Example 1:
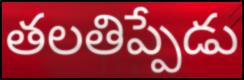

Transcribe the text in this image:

తలతిప్పేడు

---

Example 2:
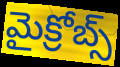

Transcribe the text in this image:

మైక్రోబ్స్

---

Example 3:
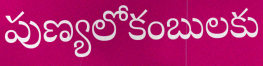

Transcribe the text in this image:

పుణ్యలోకంబులకు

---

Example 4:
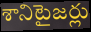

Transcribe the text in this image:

శానిటైజర్లు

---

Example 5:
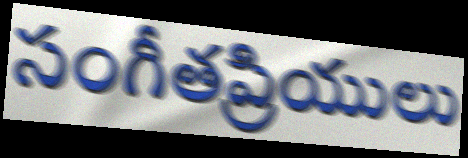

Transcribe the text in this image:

సంగీతప్రియులు